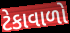
ટેકાવાળો